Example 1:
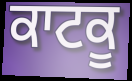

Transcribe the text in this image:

ਕਾਟਕੂ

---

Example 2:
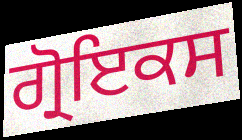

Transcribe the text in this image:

ਗ੍ਰੋਇਕਸ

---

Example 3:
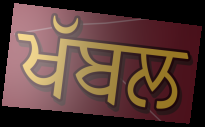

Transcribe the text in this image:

ਖੱਬਲ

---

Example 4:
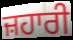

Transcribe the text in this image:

ਜ਼ਹਾਰੀ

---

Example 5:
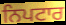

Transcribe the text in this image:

ਨਿਪਟਾਰ